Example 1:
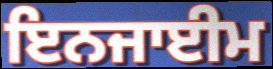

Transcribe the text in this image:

ਇਨਜਾਈਮ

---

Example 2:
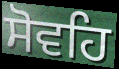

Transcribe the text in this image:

ਸੋਵਹਿ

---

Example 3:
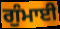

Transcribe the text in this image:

ਗੁੰਮਾਈ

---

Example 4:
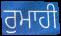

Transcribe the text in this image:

ਰੁਮਾਹੀ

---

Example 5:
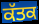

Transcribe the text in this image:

ਕੱਤਕ